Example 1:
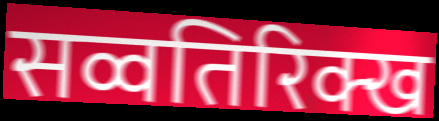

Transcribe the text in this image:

सव्वतिरिक्ख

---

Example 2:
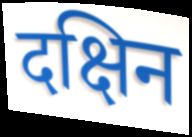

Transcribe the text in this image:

दक्षिन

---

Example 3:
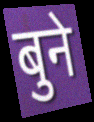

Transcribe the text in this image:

बुने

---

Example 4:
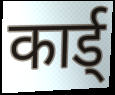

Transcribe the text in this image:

कार्ड्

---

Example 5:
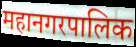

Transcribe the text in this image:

महानगरपालिक